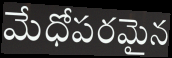
మేధోపరమైన